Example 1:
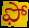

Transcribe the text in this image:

ఫో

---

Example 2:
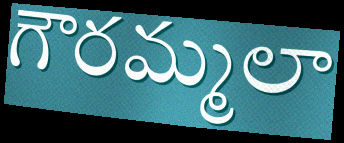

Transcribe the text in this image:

గౌరమ్మలా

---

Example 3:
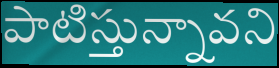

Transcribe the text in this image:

పాటిస్తున్నావని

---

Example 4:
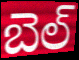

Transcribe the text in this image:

బెల్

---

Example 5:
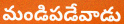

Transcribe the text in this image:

మండిపడేవాడు